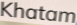
Khatam